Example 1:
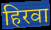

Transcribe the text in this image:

हिरवा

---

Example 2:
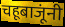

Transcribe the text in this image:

चहूबाजूंनी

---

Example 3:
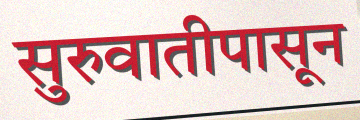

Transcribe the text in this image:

सुरुवातीपासून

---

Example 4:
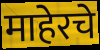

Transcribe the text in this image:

माहेरचे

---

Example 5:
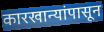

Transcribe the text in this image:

कारखान्यांपासून